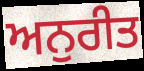
ਅਨੁਰੀਤ